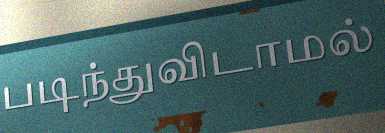
படிந்துவிடாமல்